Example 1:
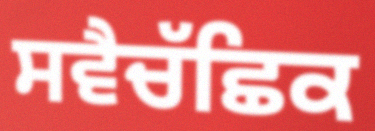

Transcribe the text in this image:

ਸਵੈਚੱਛਿਕ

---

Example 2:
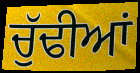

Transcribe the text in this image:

ਚੁੱਢੀਆਂ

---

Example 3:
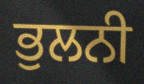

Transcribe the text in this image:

ਭੁਲਨੀ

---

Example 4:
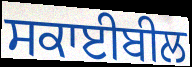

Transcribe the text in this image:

ਸਕਾਈਬੀਲ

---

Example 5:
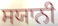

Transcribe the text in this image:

ਸਯਾਨੀ